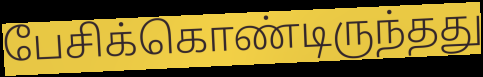
பேசிக்கொண்டிருந்தது